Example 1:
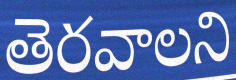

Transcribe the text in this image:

తెరవాలని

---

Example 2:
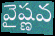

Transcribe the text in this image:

వైష్ణవ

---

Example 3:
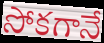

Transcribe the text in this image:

సోకగానే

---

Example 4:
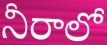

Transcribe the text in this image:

నీరాలో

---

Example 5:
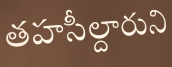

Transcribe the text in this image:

తహసీల్దారుని